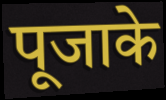
पूजाके